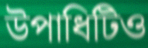
উপাধিটিও